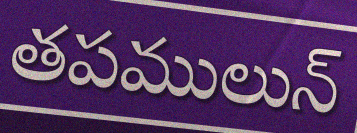
తపములున్